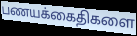
பணயக்கைதிகளை